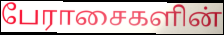
பேராசைகளின்